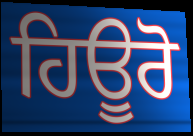
ਹਿਊਰੋ